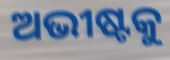
ଅଭୀଷ୍ଟକୁ